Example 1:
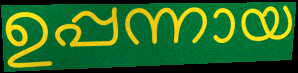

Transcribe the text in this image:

ഉപ്പന്നായ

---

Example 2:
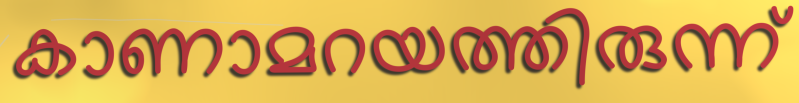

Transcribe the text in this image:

കാണാമറയത്തിരുന്ന്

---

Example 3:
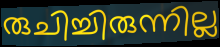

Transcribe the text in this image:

രുചിച്ചിരുന്നില്ല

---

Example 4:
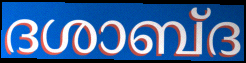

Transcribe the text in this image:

ദശാബ്ദ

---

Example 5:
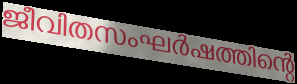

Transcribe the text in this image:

ജീവിതസംഘർഷത്തിന്റെ